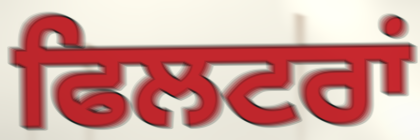
ਫਿਲਟਰਾਂ